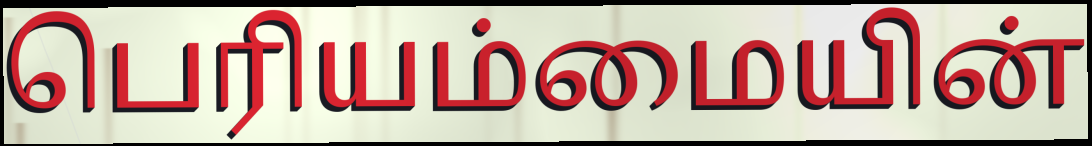
பெரியம்மையின்